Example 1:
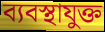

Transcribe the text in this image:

ব্যবস্থাযুক্ত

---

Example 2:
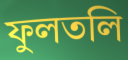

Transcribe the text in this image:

ফুলতলি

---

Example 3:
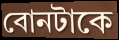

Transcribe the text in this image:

বোনটাকে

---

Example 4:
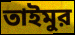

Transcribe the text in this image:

তাইমুর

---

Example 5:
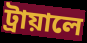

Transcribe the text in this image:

ট্রায়ালে